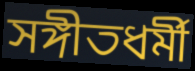
সঙ্গীতধর্মী